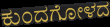
ಕುಂದಗೋಳದ